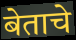
बेताचे